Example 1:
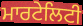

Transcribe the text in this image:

ਮਾਰਟੇਲਿਟੀ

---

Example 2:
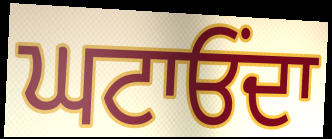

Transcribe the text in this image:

ਘਟਾਓਂਦਾ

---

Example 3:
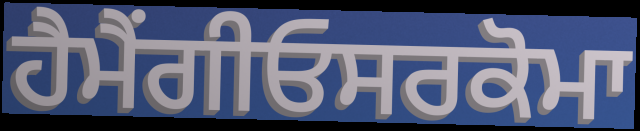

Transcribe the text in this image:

ਹੈਮੈਂਗੀਓਸਰਕੋਮਾ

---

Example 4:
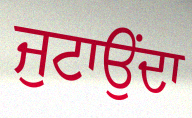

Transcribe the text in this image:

ਜੁਟਾਉਂਦਾ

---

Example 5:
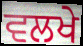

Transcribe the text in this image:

ਵਲਖੇ